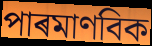
পাৰমাণবিক